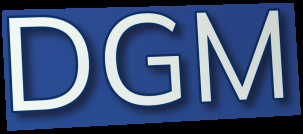
DGM